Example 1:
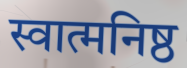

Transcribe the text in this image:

स्वात्मनिष्ठ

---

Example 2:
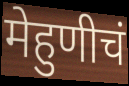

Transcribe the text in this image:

मेहुणीचं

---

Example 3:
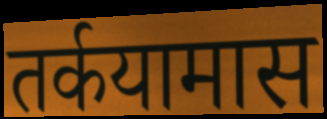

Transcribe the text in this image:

तर्कयामास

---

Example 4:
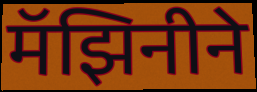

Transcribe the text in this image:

मॅझिनीने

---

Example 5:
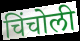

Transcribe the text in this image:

चिंचोली